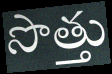
సొత్తు